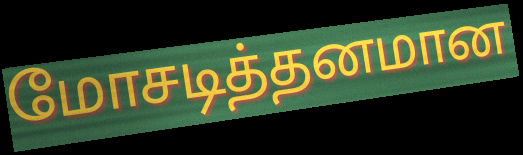
மோசடித்தனமான